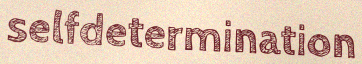
selfdetermination